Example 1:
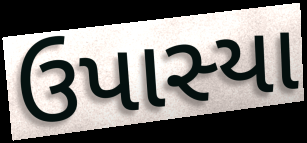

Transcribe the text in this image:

ઉપાસ્યા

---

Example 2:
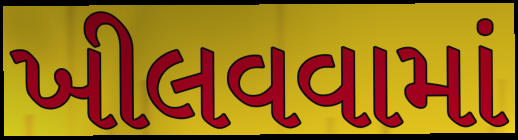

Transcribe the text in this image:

ખીલવવામાં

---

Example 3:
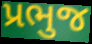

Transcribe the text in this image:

પ્રભુજ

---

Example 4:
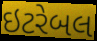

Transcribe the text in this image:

ઇટરેબલ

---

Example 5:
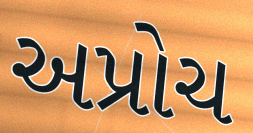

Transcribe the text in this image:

અપ્રોચ